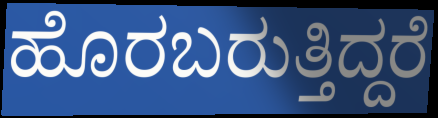
ಹೊರಬರುತ್ತಿದ್ದರೆ